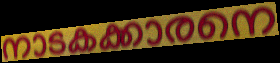
നാടകക്കാരനെ